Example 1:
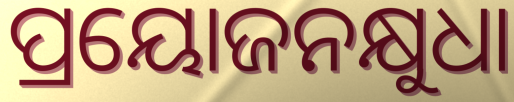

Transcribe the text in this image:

ପ୍ରୟୋଜନକ୍ଷୁଧା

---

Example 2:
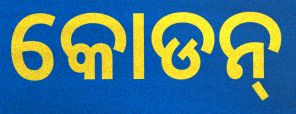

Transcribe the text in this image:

କୋଡନ୍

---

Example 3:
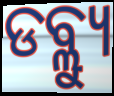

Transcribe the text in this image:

ଡବ୍ଲ୍ୟୁ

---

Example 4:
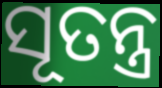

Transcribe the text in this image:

ସୂତନ୍ତ୍ର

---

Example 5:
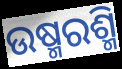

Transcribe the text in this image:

ଉଷ୍ମରଶ୍ମି